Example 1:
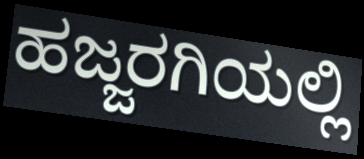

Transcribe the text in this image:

ಹಜ್ಜರಗಿಯಲ್ಲಿ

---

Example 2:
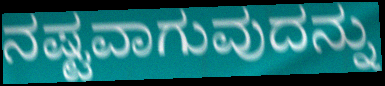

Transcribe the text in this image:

ನಷ್ಟವಾಗುವುದನ್ನು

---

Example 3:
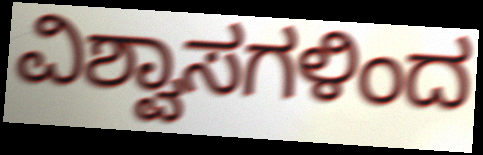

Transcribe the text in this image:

ವಿಶ್ವಾಸಗಳಿಂದ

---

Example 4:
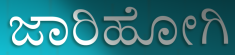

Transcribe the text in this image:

ಜಾರಿಹೋಗಿ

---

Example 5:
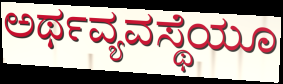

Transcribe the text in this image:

ಅರ್ಥವ್ಯವಸ್ಥೆಯೂ